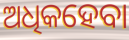
ଅଧିକହେବା